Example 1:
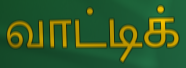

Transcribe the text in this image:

வாட்டிக்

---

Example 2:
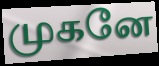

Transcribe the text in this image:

முகனே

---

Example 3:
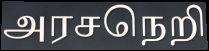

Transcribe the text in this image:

அரசநெறி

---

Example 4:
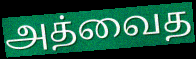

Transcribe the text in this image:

அத்வைத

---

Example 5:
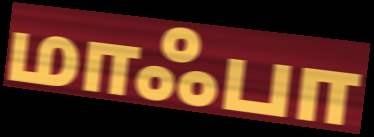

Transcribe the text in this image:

மாஃபா